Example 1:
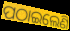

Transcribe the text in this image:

ପଠାଇଲେଣି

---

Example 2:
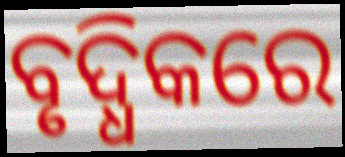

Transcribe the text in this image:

ବୃଦ୍ଧିକରେ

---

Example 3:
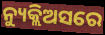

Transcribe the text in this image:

ନ୍ୟୁକ୍ଲିଅସରେ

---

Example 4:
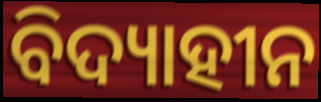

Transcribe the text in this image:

ବିଦ୍ୟାହୀନ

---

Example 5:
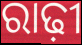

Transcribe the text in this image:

ରାଢ଼ୀ